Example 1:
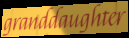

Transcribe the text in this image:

granddaughter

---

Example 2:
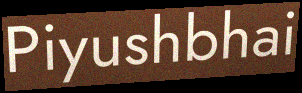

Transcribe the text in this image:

Piyushbhai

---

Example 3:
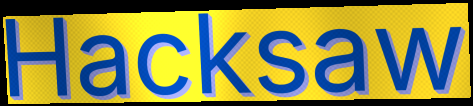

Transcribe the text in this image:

Hacksaw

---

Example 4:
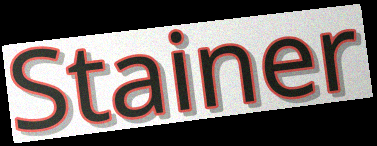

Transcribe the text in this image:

Stainer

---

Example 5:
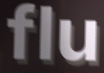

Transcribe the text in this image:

flu